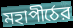
মহাপীঠের